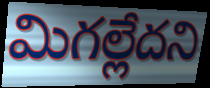
మిగల్లేదని